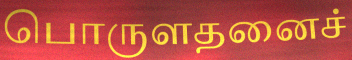
பொருளதனைச்